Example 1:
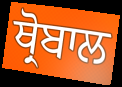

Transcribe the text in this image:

ਥ੍ਰੋਬਾਲ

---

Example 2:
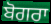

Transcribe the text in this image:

ਬੋਗਰਾ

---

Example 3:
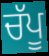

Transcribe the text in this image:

ਚੱਪੂ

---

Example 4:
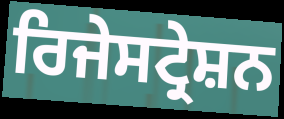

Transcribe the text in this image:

ਰਿਜੇਸਟ੍ਰੇਸ਼ਨ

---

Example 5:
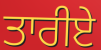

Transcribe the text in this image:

ਤਾਰੀਏ